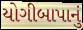
યોગીબાપાનું